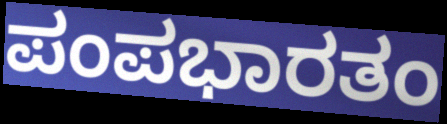
ಪಂಪಭಾರತಂ